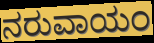
ನರುವಾಯಂ